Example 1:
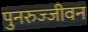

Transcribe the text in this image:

पुनरुज्‍जीवन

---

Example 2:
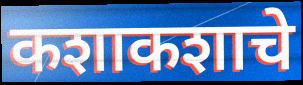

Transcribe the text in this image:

कशाकशाचे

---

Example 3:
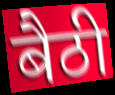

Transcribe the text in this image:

बैठी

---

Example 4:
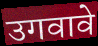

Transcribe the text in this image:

उगवावे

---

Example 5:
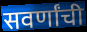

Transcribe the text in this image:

सवर्णांची